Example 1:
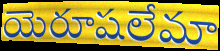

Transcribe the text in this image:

యెరూషలేమా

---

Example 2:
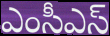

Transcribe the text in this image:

ఎంసీఎస్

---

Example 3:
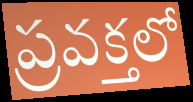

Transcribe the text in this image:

ప్రవక్తలో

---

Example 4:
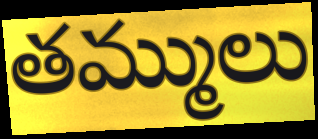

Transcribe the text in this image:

తమ్ములు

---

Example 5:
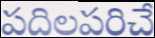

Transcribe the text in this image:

పదిలపరిచే